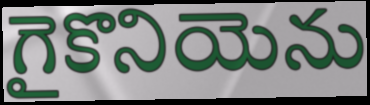
గైకొనియెను